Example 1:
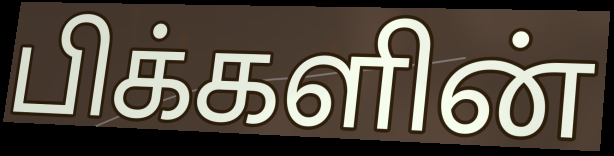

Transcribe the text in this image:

பிக்களின்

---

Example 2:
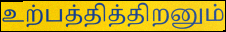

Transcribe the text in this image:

உற்பத்தித்திறனும்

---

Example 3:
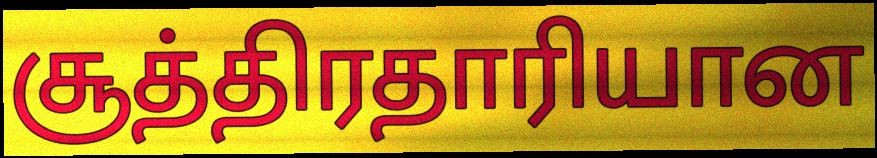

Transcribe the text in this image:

சூத்திரதாரியான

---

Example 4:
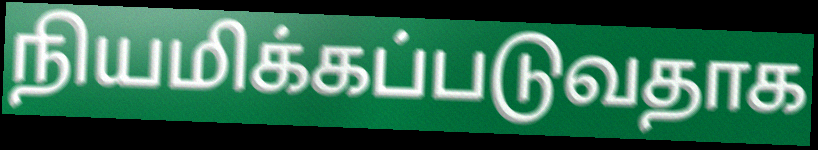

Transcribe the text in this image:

நியமிக்கப்படுவதாக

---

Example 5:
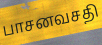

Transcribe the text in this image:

பாசனவசதி